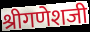
श्रीगणेशजी